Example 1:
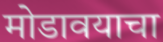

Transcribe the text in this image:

मोडावयाचा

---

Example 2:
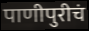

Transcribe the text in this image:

पाणीपुरीचं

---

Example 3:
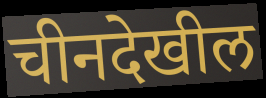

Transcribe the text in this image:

चीनदेखील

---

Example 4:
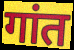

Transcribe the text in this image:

गांत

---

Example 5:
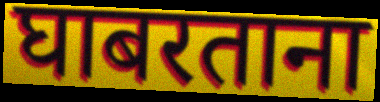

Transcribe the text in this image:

घाबरताना